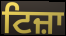
ਟਿਜ਼ਾ